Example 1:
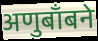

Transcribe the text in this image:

अणुबाँबने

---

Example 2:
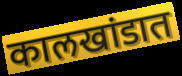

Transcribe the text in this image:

कालखांडात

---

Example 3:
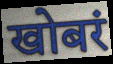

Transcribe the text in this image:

खोबरं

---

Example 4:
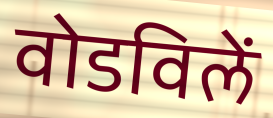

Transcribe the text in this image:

वोडविलें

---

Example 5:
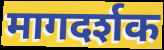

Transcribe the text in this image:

मागदर्शक